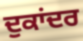
ਦੁਕਾਂਦਰ